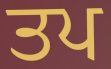
ਤਪ